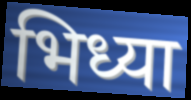
भिध्या